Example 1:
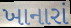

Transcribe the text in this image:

ખાનારાં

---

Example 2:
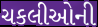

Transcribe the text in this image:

ચકલીઓની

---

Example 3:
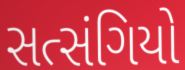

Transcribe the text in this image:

સત્સંગિયો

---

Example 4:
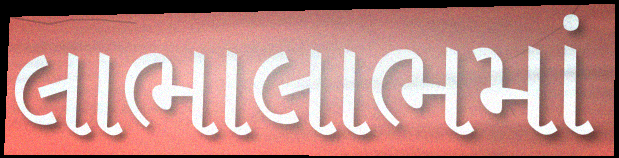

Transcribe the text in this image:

લાભાલાભમાં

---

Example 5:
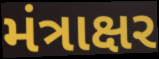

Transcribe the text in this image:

મંત્રાક્ષર